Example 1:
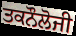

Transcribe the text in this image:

ਤਕਨੌਲੋਜੀ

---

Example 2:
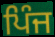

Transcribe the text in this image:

ਪਿੰਜ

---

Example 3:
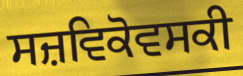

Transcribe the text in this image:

ਸਜ਼ਵਿਕੋਵਸਕੀ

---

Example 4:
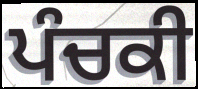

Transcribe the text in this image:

ਪੰਚਕੀ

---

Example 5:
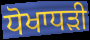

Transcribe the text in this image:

ਧੋਖਾਧਡ਼ੀ